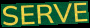
SERVE